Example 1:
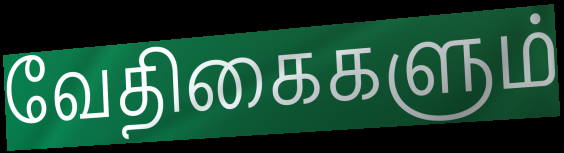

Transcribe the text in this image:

வேதிகைகளும்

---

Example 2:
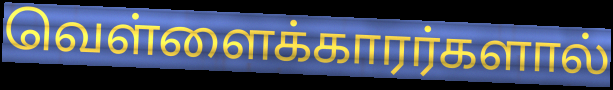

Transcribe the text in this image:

வெள்ளைக்காரர்களால்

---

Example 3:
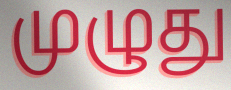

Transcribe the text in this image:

முழுது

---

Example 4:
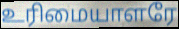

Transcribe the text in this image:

உரிமையாளரே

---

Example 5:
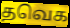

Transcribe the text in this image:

தவெக